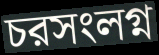
চরসংলগ্ন